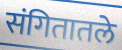
संगितातले